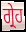
ਗ੍ਰੇਹ